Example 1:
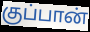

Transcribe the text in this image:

குப்பான்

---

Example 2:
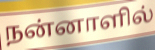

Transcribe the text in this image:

நன்னாளில்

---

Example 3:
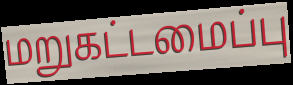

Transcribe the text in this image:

மறுகட்டமைப்பு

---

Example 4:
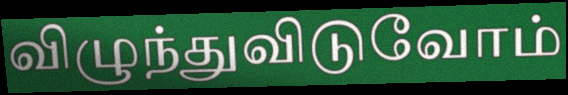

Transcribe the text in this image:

விழுந்துவிடுவோம்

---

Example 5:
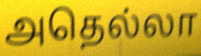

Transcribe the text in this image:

அதெல்லா